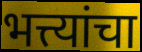
भत्त्यांचा